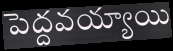
పెద్దవయ్యాయి